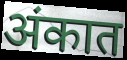
अंकात